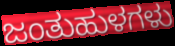
ಜಂತುಹುಳಗಳು